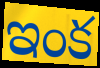
ఇంక